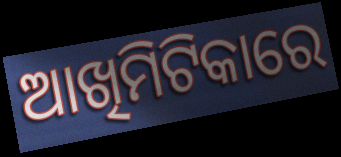
ଆଖିମିଟିକାରେ